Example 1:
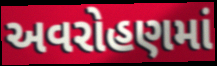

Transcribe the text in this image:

અવરોહણમાં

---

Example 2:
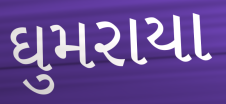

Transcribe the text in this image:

ઘુમરાયા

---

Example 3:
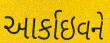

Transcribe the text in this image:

આર્કાઇવને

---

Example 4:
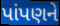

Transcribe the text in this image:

પાંપણને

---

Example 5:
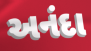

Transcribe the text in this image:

અનંદા